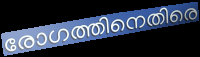
രോഗത്തിനെതിരെ